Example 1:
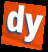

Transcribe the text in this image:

dy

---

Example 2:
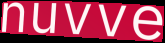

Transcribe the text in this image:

nuvve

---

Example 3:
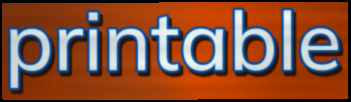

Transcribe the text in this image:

printable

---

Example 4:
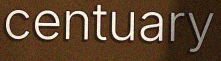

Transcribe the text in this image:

centuary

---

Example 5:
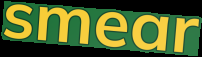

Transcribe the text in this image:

smear